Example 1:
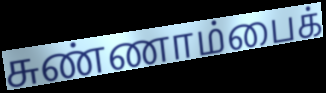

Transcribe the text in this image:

சுண்ணாம்பைக்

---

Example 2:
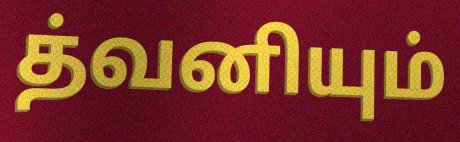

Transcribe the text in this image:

த்வனியும்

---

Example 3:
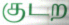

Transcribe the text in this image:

குடற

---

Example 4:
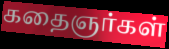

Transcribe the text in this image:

கதைஞர்கள்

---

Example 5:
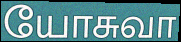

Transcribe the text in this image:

யோசுவா